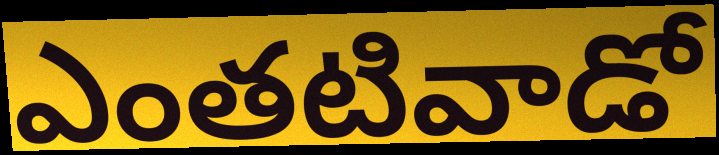
ఎంతటివాడో